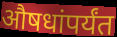
औषधांपर्यंत